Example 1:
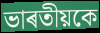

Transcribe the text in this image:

ভাৰতীয়কে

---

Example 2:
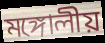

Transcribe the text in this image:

মঙ্গোলীয়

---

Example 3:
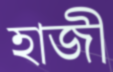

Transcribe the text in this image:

হাজী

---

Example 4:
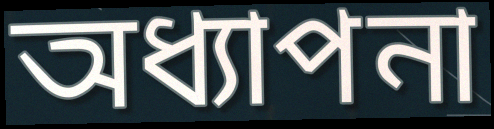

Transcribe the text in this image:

অধ্যাপনা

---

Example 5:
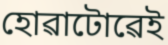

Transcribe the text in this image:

হোৱাটোৱেই